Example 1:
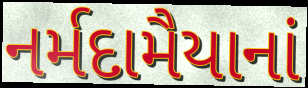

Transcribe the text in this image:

નર્મદામૈયાનાં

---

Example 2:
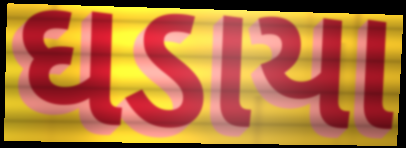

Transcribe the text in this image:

ઘડાયા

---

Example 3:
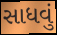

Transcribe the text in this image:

સાધવું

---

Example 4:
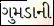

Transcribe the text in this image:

ગુમડાની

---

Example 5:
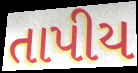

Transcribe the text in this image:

તાપીય